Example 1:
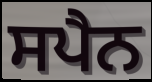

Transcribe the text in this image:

ਸਪੈਨ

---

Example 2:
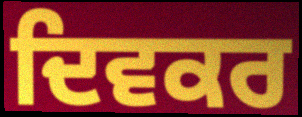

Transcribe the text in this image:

ਦਿਵਕਰ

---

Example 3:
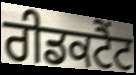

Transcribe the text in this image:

ਰੀਡਕਟੈਂਟ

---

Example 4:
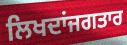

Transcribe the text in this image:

ਲਿਖਦਾਂਜਗਤਾਰ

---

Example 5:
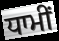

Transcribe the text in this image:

ਧਾਮੀਂ